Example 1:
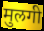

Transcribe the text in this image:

मुलगी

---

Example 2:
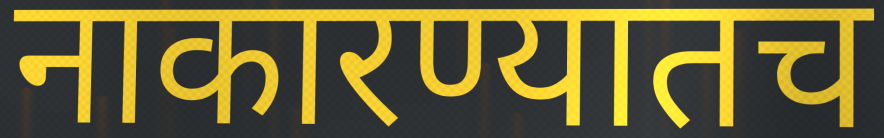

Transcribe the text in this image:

नाकारण्यातच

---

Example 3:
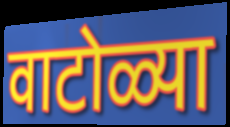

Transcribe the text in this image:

वाटोळ्या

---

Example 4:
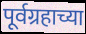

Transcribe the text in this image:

पूर्वग्रहाच्या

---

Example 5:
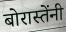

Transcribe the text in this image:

बोरास्तेंनी